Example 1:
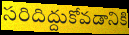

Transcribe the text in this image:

సరిదిద్దుకోవడానికి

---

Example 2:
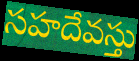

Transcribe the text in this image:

సహదేవస్తు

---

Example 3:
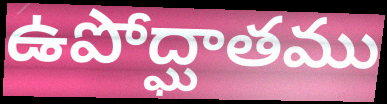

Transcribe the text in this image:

ఉపోద్ఘాతము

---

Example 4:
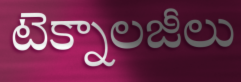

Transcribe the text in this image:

టెక్నాలజీలు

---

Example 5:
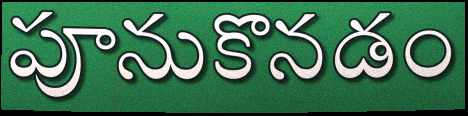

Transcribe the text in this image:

పూనుకొనడం